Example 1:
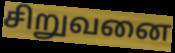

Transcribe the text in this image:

சிறுவனை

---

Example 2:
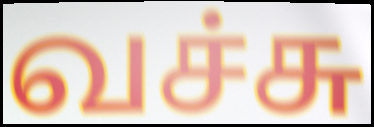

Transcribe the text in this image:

வச்சு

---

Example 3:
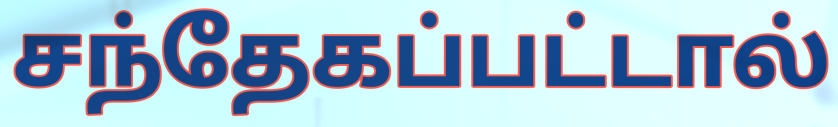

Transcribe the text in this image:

சந்தேகப்பட்டால்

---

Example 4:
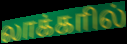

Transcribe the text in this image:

லாக்கரில்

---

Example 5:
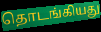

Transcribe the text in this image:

தொடங்கியது